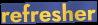
refresher